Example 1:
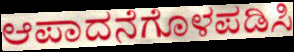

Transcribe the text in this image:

ಆಪಾದನೆಗೊಳಪಡಿಸಿ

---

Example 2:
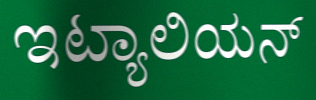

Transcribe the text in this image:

ಇಟ್ಯಾಲಿಯನ್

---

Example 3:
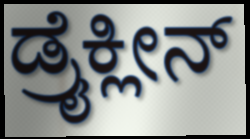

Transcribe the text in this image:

ಡ್ರೈಕ್ಲೀನ್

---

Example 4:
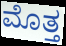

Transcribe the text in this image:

ಮೊತ್ತ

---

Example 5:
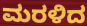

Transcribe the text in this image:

ಮರಳಿದ